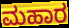
ಮಹಾರ